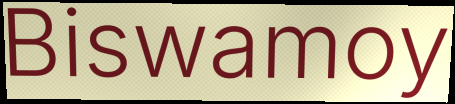
Biswamoy